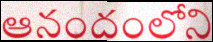
ఆనందంలోని